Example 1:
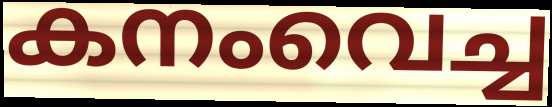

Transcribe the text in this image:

കനംവെച്ച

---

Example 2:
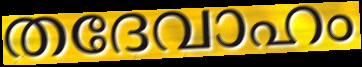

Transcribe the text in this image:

തദേവാഹം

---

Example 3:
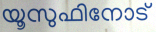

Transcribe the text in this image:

യൂസുഫിനോട്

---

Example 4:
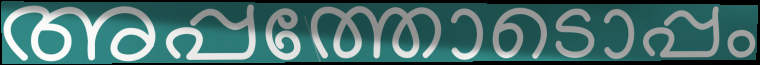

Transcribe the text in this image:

അപ്പത്തോടൊപ്പം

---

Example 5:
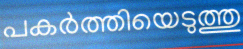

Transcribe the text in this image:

പകർത്തിയെടുത്തു